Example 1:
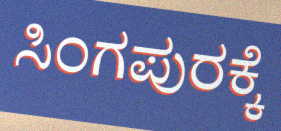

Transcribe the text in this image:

ಸಿಂಗಪುರಕ್ಕೆ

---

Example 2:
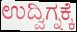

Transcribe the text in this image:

ಉದ್ವಿಗ್ನಕ್ಕೆ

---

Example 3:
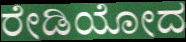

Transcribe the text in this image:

ರೇಡಿಯೋದ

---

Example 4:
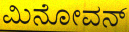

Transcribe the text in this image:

ಮಿನೋವನ್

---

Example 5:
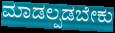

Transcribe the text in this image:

ಮಾಡಲ್ಪಡಬೇಕು